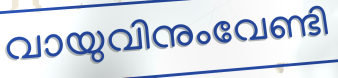
വായുവിനുംവേണ്ടി